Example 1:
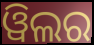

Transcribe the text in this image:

ୱିଲର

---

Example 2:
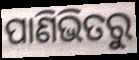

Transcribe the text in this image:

ପାଣିଭିତରୁ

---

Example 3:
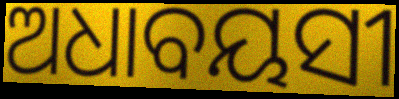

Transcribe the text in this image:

ଅଧାବୟସୀ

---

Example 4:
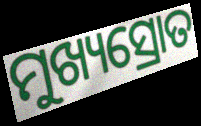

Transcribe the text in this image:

ମୁଖ୍ୟସ୍ରୋତ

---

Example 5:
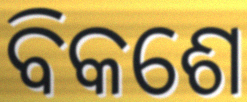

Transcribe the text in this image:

ବିକଶେ